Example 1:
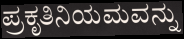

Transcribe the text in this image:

ಪ್ರಕೃತಿನಿಯಮವನ್ನು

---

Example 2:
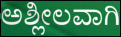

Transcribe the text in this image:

ಅಶ್ಲೀಲವಾಗಿ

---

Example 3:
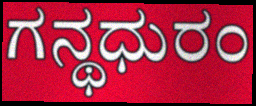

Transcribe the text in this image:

ಗನ್ಥಧುರಂ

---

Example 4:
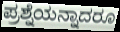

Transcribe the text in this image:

ಪ್ರಶ್ನೆಯನ್ನಾದರೂ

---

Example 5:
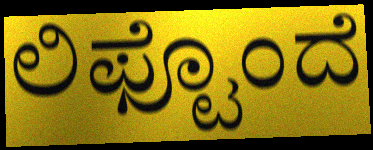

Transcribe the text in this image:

ಲಿಫ್ಟೊಂದೆ